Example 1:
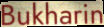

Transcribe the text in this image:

Bukharin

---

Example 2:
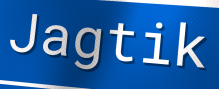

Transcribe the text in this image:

Jagtik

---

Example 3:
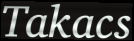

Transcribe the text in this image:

Takacs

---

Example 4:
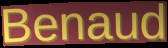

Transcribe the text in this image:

Benaud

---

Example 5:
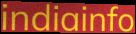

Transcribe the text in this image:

indiainfo